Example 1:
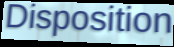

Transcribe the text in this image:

Disposition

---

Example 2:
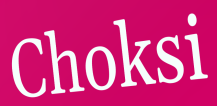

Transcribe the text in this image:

Choksi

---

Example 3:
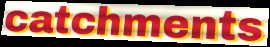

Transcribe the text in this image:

catchments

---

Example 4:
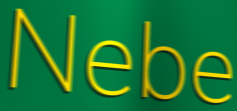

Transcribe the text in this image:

Nebe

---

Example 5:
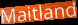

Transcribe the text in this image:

Maitland